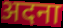
अदना